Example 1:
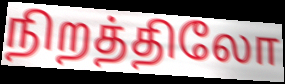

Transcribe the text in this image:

நிறத்திலோ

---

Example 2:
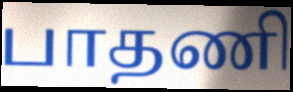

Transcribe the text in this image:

பாதணி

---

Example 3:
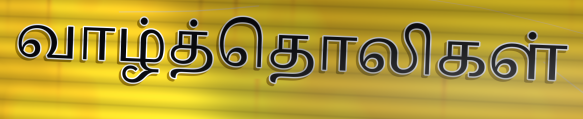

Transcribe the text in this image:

வாழ்த்தொலிகள்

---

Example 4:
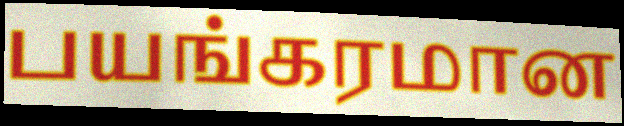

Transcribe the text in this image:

பயங்கரமான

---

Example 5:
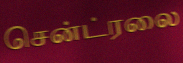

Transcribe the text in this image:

சென்ட்ரலை